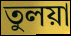
তুলয়া